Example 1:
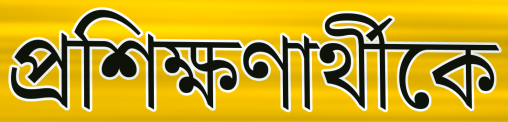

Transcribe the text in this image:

প্রশিক্ষণার্থীকে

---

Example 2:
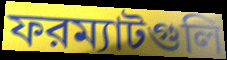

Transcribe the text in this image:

ফরম্যাটগুলি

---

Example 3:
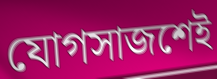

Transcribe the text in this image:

যোগসাজশেই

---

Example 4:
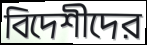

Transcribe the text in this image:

বিদেশীদের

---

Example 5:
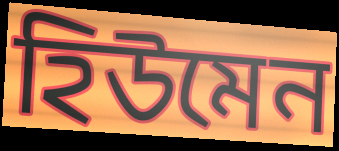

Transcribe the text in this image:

হিউমেন